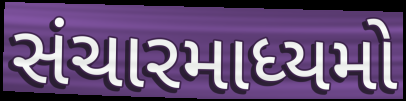
સંચારમાધ્યમો